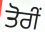
ਤੋਰੀਂ